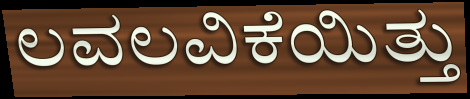
ಲವಲವಿಕೆಯಿತ್ತು